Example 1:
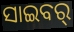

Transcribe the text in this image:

ସାଇବର୍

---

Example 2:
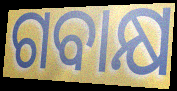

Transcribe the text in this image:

ଗବାକ୍ଷ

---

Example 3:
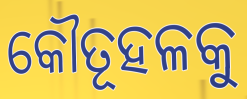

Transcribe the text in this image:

କୌତୂହଳକୁ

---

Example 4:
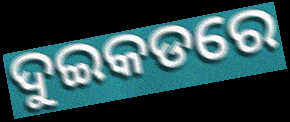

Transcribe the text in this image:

ଦୁଇକଡରେ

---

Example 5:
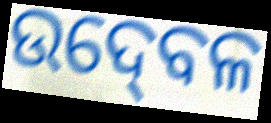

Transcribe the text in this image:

ଉଦ୍‍ବେଳ